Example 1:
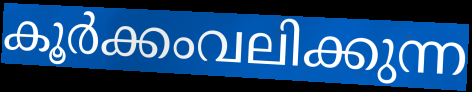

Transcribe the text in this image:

കൂർക്കംവലിക്കുന്ന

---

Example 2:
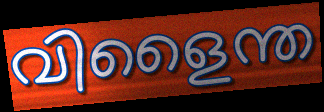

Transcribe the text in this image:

വിളൈന്ത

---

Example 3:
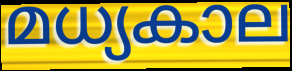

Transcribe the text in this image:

മധ്യകാല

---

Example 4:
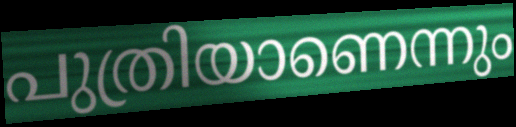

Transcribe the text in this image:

പുത്രിയാണെന്നും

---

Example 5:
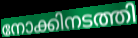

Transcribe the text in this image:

നോക്കിനടത്തി